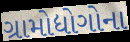
ગ્રામોદ્યોગોના